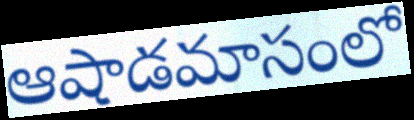
ఆషాడమాసంలో